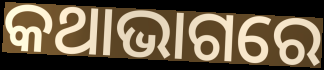
କଥାଭାଗରେ